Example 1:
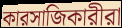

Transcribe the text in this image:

কারসাজিকারীরা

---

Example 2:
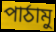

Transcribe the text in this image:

পাঠামু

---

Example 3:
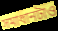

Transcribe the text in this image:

সমাধানটাও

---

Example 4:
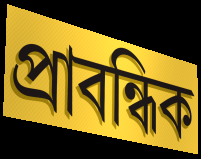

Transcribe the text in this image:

প্রাবন্ধিক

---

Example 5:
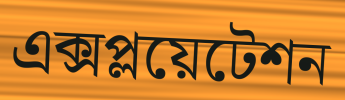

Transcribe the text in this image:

এক্সপ্লয়েটেশন